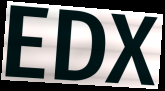
EDX